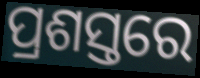
ପ୍ରଶସ୍ତରେ